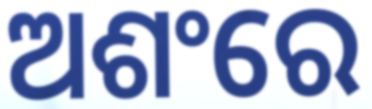
ଅଶଂରେ